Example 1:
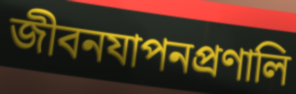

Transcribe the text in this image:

জীবনযাপনপ্রণালি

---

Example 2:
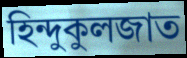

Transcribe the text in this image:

হিন্দুকুলজাত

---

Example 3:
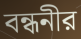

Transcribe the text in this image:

বন্ধনীর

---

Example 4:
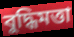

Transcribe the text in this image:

বুদ্ধিমত্তা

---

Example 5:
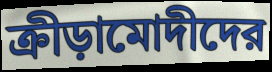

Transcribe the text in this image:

ক্রীড়ামোদীদের